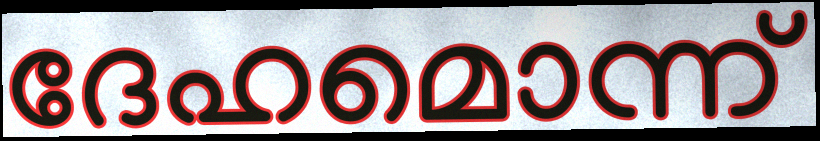
ദേഹമൊന്ന്